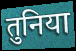
तुनिया